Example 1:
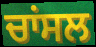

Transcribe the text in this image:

ਚਾਂਸਲ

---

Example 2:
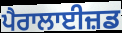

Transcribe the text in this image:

ਪੈਰਾਲਾਈਜ਼ਡ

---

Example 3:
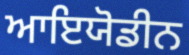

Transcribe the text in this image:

ਆਇਯੋਡੀਨ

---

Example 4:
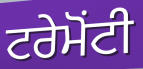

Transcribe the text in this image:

ਟਰੇਮੋਂਟੀ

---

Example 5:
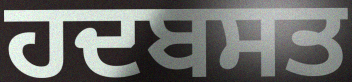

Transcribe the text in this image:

ਹਦਬਸਤ